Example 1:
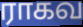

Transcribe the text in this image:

ராகவ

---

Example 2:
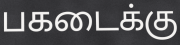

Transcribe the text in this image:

பகடைக்கு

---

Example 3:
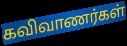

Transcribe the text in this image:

கவிவாணர்கள்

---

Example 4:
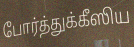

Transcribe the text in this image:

போர்த்துக்கீஸிய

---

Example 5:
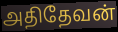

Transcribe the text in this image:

அதிதேவன்